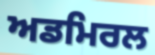
ਅਡਮਿਰਲ